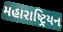
મહારાષ્ટ્રિયન